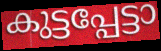
കുട്ടപ്പേട്ടാ